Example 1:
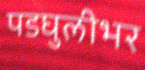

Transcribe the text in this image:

पडघुलीभर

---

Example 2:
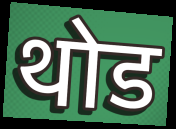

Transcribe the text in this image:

थोड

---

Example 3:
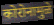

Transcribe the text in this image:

कोरोनामुळे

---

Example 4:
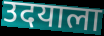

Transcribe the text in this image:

उदयाला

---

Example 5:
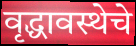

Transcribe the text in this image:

वृद्धावस्थेचे